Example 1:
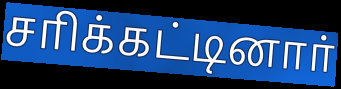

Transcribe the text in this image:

சரிக்கட்டினார்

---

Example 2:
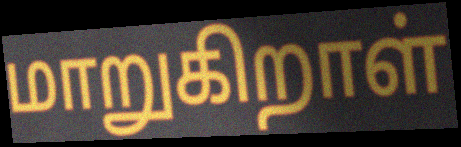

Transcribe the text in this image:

மாறுகிறாள்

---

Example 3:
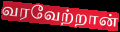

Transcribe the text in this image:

வரவேற்றான்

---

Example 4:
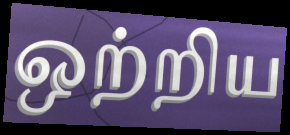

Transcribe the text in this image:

ஒற்றிய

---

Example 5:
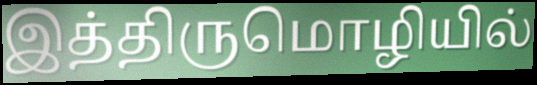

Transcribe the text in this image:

இத்திருமொழியில்